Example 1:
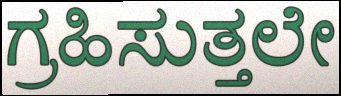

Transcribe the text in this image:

ಗ್ರಹಿಸುತ್ತಲೇ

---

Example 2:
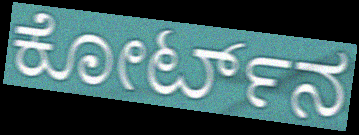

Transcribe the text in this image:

ಕೋರ್ಟ್‌ನ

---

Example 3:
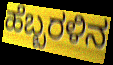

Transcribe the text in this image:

ಹೆಬ್ಬರಳಿನ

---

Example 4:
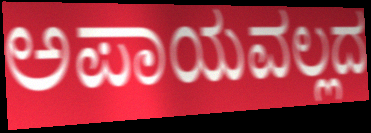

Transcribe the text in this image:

ಅಪಾಯವಲ್ಲದ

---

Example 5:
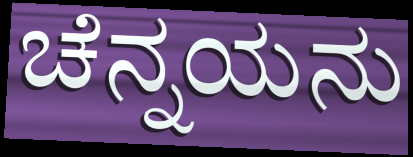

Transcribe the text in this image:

ಚೆನ್ನಯನು